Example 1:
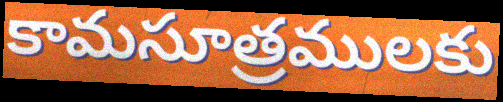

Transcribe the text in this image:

కామసూత్రములకు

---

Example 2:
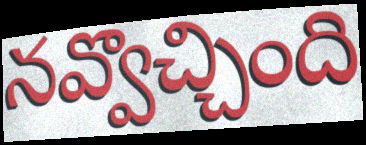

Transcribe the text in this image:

నవ్వొచ్చింది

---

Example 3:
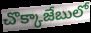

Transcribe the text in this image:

చొక్కాజేబులో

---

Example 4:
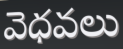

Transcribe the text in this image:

వెధవలు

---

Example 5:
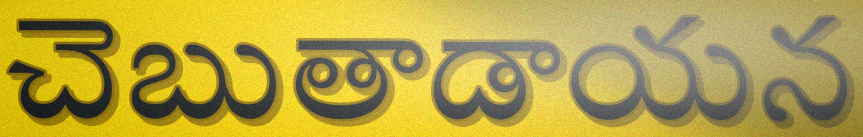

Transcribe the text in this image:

చెబుతాడాయన